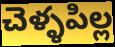
చెళ్ళపిల్ల